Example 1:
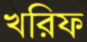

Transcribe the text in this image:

খরিফ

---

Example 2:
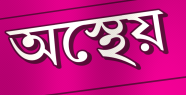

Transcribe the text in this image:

অস্থেয়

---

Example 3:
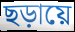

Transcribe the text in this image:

ছড়ায়ে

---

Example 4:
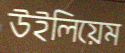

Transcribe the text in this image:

উইলিয়েম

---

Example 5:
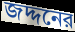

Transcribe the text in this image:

জদ্দনের